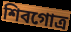
শিবগোত্র